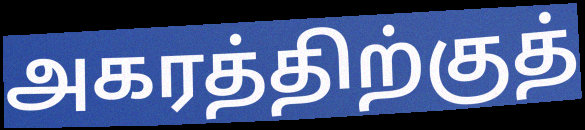
அகரத்திற்குத்